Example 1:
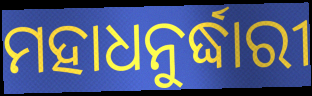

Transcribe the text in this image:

ମହାଧନୁର୍ଦ୍ଧାରୀ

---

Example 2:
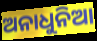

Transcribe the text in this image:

ଅନାଧୁନିଆ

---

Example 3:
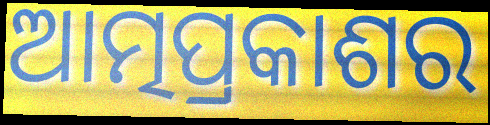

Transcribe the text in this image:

ଆତ୍ମପ୍ରକାଶର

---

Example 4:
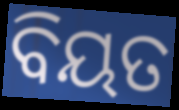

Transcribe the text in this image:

ବିୟତ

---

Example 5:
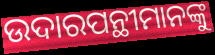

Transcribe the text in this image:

ଉଦାରପନ୍ଥୀମାନଙ୍କୁ